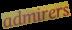
admirers